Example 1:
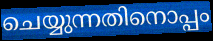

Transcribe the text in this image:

ചെയ്യുന്നതിനൊപ്പം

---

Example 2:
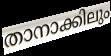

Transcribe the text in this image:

താനാക്കിലും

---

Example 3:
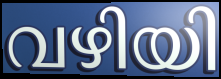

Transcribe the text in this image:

വഴിയി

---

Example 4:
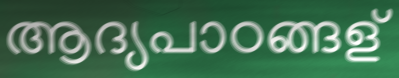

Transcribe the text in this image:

ആദ്യപാഠങ്ങള്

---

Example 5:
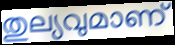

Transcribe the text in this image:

തുല്യവുമാണ്